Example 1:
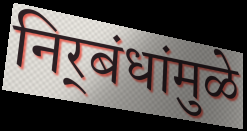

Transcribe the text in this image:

निर्बंधांमुळे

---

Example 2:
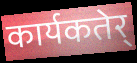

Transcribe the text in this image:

कार्यकतेर्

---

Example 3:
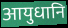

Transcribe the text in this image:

आयुधानि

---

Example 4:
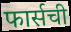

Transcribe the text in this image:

फार्सची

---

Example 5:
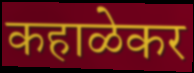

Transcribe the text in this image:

कहाळेकर